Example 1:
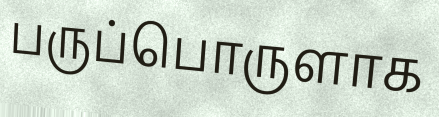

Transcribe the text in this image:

பருப்பொருளாக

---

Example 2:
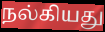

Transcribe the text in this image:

நல்கியது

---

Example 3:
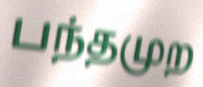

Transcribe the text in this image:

பந்தமுற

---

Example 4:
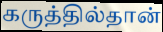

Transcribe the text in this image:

கருத்தில்தான்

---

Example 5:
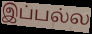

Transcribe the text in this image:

இப்பல்ல